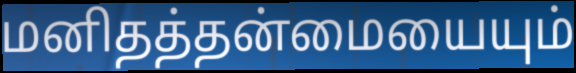
மனிதத்தன்மையையும்